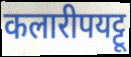
कलारीपयट्टू